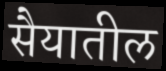
सैयातील